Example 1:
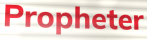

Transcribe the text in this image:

Propheter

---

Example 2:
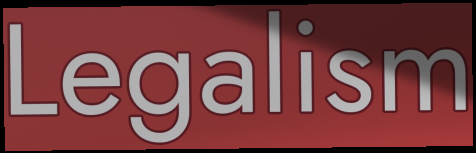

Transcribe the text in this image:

Legalism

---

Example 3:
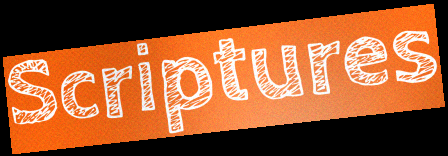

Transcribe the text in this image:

Scriptures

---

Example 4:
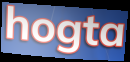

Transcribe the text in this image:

hogta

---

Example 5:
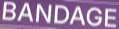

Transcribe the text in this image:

BANDAGE